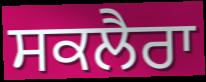
ਸਕਲੈਰਾ